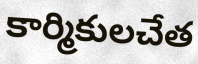
కార్మికులచేత